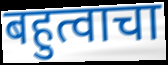
बहुत्वाचा